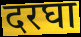
दरघा